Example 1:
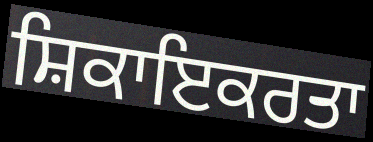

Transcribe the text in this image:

ਸ਼ਿਕਾਇਕਰਤਾ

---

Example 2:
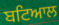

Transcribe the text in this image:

ਬਟਿਆਲ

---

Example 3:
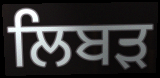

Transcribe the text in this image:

ਲਿਬੜ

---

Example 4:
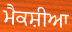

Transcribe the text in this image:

ਮੈਕਸ਼ੀਆ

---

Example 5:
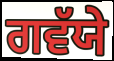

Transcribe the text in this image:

ਗਵੱਯੇ